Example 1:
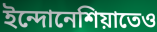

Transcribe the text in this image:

ইন্দোনেশিয়াতেও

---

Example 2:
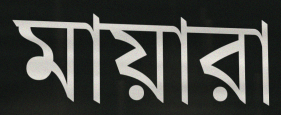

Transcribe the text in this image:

মায়ারা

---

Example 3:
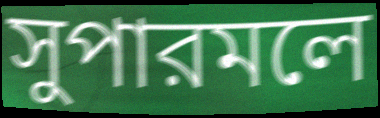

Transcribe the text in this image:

সুপারমলে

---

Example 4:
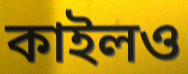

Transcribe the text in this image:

কাইলও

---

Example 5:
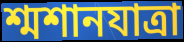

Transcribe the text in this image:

শ্মশানযাত্রা